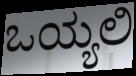
ಒಯ್ಯಲಿ